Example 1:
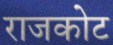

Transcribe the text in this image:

राजकोट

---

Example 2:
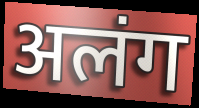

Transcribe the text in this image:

अलंग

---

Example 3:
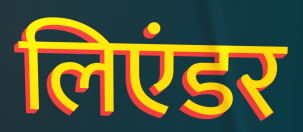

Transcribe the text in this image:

लिएंडर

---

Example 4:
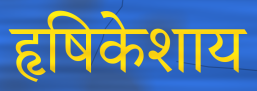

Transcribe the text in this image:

हृषिकेशाय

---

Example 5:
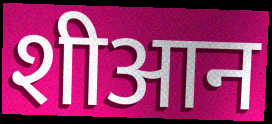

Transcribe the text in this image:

शीआन